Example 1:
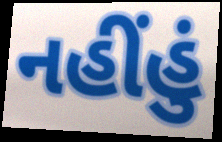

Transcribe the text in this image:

નહીંહું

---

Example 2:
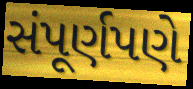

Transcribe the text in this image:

સંપૂર્ણપણે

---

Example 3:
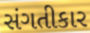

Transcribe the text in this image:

સંગતીકાર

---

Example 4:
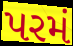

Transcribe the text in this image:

પરમં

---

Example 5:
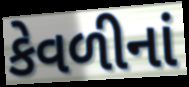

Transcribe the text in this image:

કેવળીનાં